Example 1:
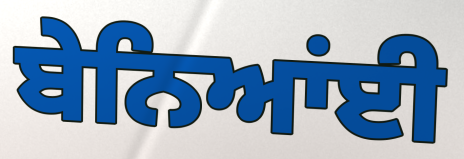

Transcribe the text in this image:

ਬੇਨਿਆਂਈ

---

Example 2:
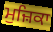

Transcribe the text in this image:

ਮੁਜ਼ਿਕਾ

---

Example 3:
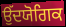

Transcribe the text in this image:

ਉੱਦਯੋਗਿਕ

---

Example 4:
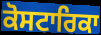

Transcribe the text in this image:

ਕੋਸਟਾਰਿਕਾ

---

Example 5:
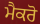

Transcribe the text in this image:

ਮੈਕਰੋ